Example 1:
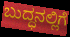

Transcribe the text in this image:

ಬುದ್ಧನಲ್ಲಿಗೆ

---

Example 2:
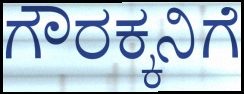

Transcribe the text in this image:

ಗೌರಕ್ಕನಿಗೆ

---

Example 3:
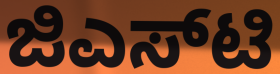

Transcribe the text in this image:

ಜಿಎಸ್‌ಟಿ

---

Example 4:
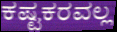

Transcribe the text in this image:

ಕಷ್ಟಕರವಲ್ಲ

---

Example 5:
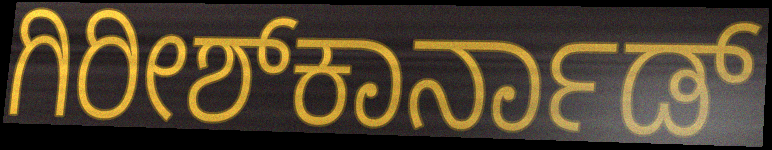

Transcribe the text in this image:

ಗಿರೀಶ್‌ಕಾರ್ನಾಡ್